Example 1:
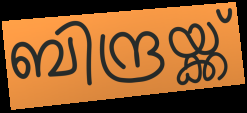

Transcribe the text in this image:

ബിന്ദ്രയ്ക്ക്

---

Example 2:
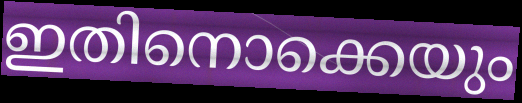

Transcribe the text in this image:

ഇതിനൊക്കെയും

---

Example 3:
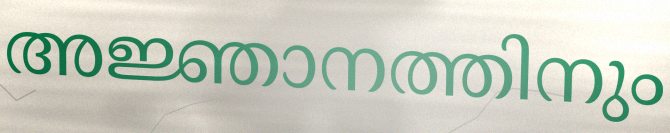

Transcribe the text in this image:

അജ്ഞാനത്തിനും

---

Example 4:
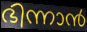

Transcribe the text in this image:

ഭിന്നാൻ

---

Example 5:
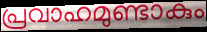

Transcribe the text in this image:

പ്രവാഹമുണ്ടാകും